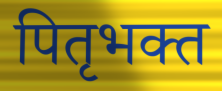
पितृभक्त